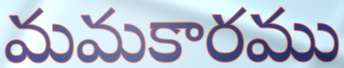
మమకారము